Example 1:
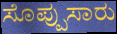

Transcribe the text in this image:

ಸೊಪ್ಪುಸಾರು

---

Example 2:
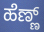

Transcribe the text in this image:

ಹೆಣ್ಣ್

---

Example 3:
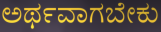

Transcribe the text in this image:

ಅರ್ಥವಾಗಬೇಕು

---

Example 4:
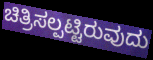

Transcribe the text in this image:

ಚಿತ್ರಿಸಲ್ಪಟ್ಟಿರುವುದು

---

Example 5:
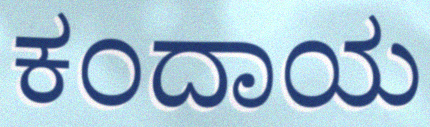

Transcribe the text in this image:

ಕಂದಾಯ